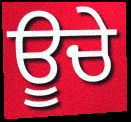
ਊਚੇ